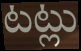
టట్లు